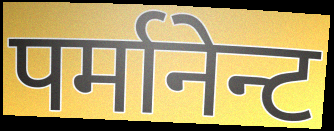
पर्मानेन्ट